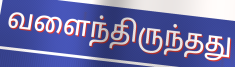
வளைந்திருந்தது